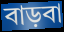
বাড়বা